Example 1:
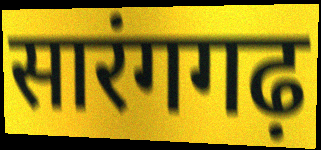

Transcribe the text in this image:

सारंगगढ़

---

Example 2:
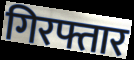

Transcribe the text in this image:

गिरफ्‍तार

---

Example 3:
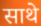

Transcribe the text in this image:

साथे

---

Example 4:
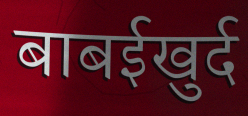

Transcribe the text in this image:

बाबईखुर्द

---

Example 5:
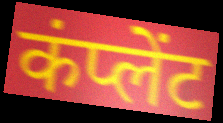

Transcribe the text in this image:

कंप्लेंट